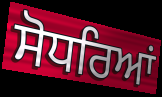
ਸੋਧਰਿਆਂ